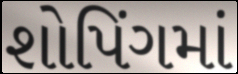
શોપિંગમાં